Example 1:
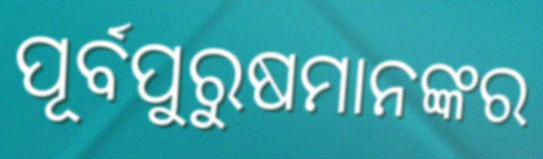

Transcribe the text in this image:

ପୂର୍ବପୁରୁଷମାନଙ୍କର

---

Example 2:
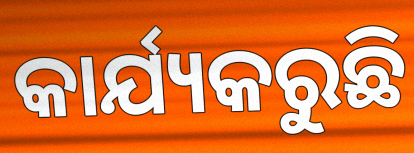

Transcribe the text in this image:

କାର୍ଯ୍ୟକରୁଛି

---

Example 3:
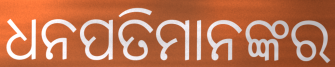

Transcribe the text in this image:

ଧନପତିମାନଙ୍କର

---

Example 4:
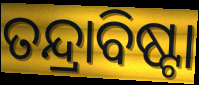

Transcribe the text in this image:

ତନ୍ଦ୍ରାବିଷ୍ଟା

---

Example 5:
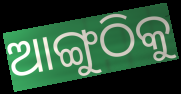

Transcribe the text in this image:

ଆଙ୍ଗୁଠିକୁ